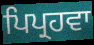
ਪਿਪ੍ਰਹਵਾ